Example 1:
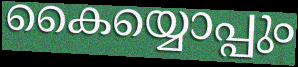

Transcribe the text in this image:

കൈയ്യൊപ്പും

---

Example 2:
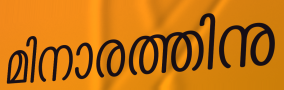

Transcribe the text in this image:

മിനാരത്തിനു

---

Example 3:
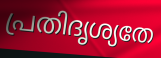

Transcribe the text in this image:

പ്രതിദൃശ്യതേ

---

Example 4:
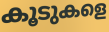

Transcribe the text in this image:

കൂടുകളെ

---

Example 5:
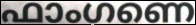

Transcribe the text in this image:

ഫാംഗണെ